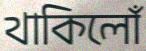
থাকিলোঁ